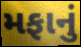
મફાનું